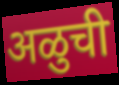
अळुची